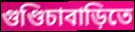
গুণ্ডিচাবাড়িতে